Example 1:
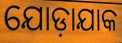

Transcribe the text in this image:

ଯୋଡ଼ାଯାକ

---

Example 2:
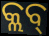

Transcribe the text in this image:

କ୍ଲବ୍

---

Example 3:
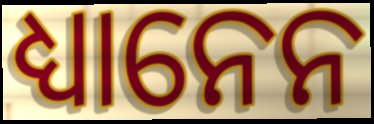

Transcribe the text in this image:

ଧ୍ୟାନେନ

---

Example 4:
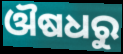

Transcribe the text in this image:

ଔଷଧରୁ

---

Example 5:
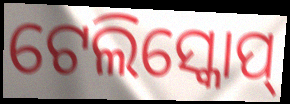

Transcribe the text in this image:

ଟେଲିସ୍କୋପ୍